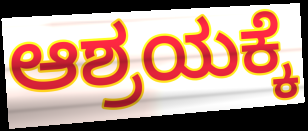
ಆಶ್ರಯಕ್ಕೆ